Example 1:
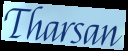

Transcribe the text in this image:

Tharsan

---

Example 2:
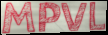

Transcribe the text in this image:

MPVL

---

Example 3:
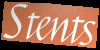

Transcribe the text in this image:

Stents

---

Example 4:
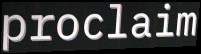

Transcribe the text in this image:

proclaim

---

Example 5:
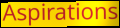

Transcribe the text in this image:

Aspirations